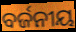
ବର୍ଜନୀୟ